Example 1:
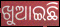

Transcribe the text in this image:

ଖୁଆଇଛି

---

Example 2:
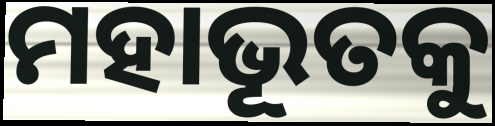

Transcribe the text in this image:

ମହାଭୂତକୁ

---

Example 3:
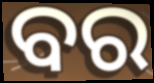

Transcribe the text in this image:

ବର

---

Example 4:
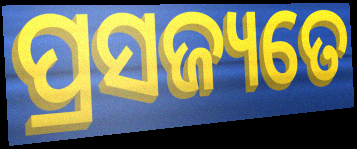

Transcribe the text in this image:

ପ୍ରସଜ୍ୟତେ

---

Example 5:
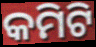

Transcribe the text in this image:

କମିଟି